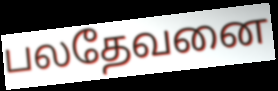
பலதேவனை